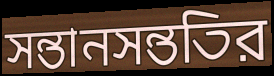
সন্তানসন্ততির